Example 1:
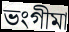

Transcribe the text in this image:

ভংগীমা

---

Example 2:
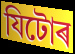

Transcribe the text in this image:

যিটোৰ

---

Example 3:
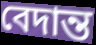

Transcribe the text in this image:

বেদান্ত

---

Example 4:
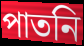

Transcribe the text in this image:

পাতনি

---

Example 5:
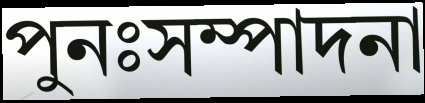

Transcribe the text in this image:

পুনঃসম্পাদনা